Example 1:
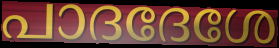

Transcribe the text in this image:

പാദദേശേ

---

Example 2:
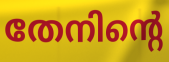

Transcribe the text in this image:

തേനിന്റെ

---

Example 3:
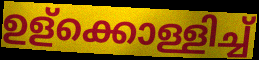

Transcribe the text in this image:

ഉള്ക്കൊള്ളിച്ച്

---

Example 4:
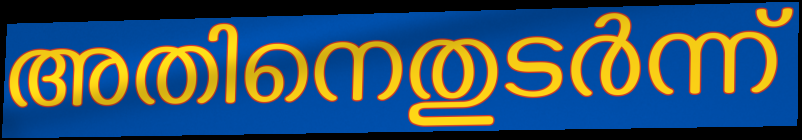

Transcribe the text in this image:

അതിനെതുടർന്ന്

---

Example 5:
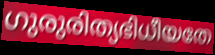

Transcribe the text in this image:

ഗുരുരിത്യഭിധീയതേ